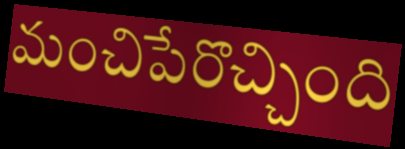
మంచిపేరొచ్చింది